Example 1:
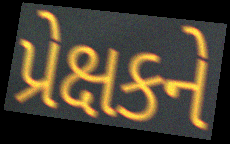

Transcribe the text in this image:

પ્રેક્ષકને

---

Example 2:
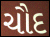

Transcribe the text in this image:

ચૌદ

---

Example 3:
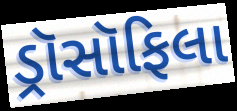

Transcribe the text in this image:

ડ્રૉસૉફિલા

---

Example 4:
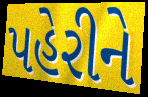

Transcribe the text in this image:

પહેરીને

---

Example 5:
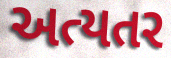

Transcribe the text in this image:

અત્યતર